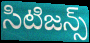
సిటిజన్స్